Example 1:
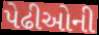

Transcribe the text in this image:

પેઢીઓની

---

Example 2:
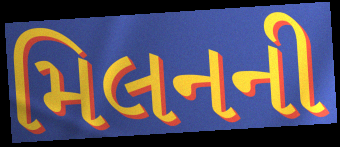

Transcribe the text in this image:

મિલનની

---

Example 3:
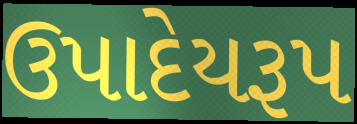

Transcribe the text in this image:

ઉપાદેયરૂપ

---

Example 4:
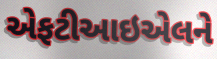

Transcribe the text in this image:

એફટીઆઇએલને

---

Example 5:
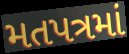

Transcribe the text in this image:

મતપત્રમાં